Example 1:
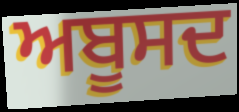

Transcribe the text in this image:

ਅਬੂਸਦ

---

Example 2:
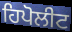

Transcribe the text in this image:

ਹਿਪੋਲੀਟ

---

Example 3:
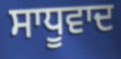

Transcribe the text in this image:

ਸਾਧੂਵਾਦ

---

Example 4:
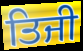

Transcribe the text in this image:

ਤਿਜੀ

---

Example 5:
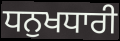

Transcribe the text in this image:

ਧਨੁਖਧਾਰੀ